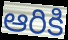
ఆరికి